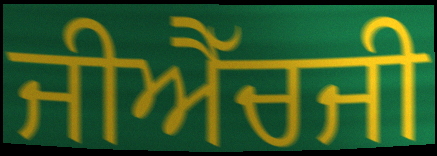
ਜੀਐੱਚਜੀ